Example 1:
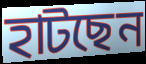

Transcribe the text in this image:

হাটছেন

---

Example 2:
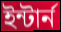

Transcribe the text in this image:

ইন্টার্ন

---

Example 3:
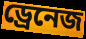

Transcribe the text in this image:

ড্রেনেজ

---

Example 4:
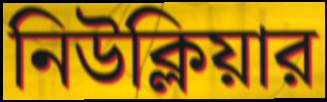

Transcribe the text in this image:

নিউক্লিয়ার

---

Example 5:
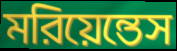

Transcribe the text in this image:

মরিয়েন্তেস